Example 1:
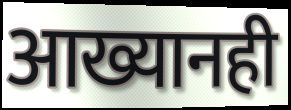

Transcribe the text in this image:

आख्यानही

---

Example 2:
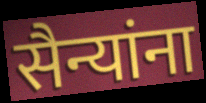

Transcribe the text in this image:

सैन्यांना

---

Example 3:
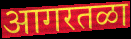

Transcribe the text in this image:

आगरतळा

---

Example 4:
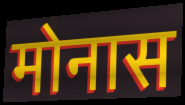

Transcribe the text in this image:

मोनास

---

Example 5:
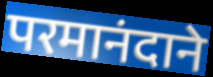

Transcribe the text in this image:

परमानंदाने